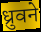
ध्रुवने